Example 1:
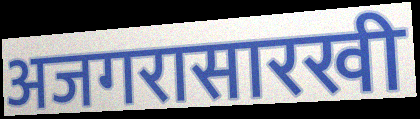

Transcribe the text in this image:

अजगरासारखी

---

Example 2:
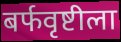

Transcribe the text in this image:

बर्फवृष्टीला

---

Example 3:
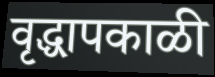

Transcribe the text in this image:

वृद्धापकाळी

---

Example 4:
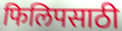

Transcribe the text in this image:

फिलिपसाठी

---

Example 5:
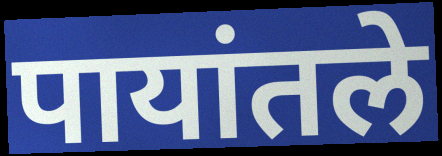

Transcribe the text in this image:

पायांतले